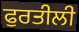
ਫੁਰਤੀਲੀ